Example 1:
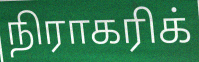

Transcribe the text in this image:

நிராகரிக்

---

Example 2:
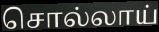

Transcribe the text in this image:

சொல்லாய்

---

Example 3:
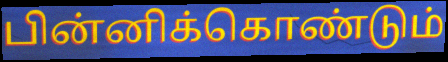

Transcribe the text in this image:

பின்னிக்கொண்டும்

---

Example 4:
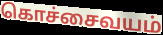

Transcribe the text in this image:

கொச்சைவயம்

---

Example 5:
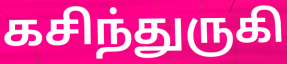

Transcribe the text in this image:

கசிந்துருகி